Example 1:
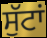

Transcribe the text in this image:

ਸੁੱਟਾਂ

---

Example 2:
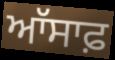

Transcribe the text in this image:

ਆੱਸਾਫ਼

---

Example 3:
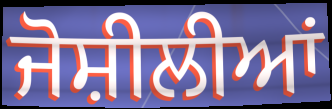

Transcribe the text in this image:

ਜੋਸ਼ੀਲੀਆਂ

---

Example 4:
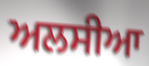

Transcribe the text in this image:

ਅਲਸੀਆ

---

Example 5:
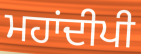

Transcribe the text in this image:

ਮਹਾਂਦੀਪੀ